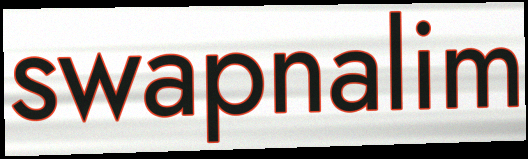
swapnalim